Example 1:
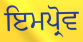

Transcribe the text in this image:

ਇਮਪ੍ਰੋਵ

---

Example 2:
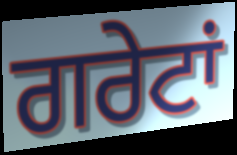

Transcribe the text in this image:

ਗਰੇਟਾਂ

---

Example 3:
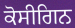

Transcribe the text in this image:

ਕੋਸੀਗਿਨ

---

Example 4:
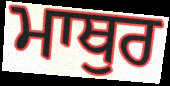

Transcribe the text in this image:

ਮਾਥੁਰ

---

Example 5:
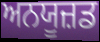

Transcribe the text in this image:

ਅਨਯੂਜ਼ਡ